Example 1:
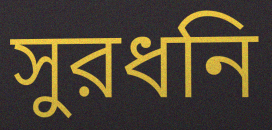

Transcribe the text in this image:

সুরধনি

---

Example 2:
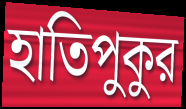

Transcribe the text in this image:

হাতিপুকুর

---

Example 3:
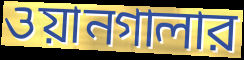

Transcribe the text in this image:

ওয়ানগালার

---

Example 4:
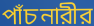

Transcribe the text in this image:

পাঁচনারীর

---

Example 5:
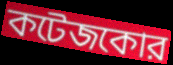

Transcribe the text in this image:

কটেজকোর